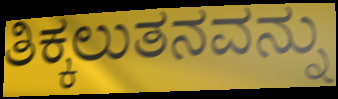
ತಿಕ್ಕಲುತನವನ್ನು